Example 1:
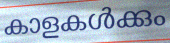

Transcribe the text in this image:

കാളകൾക്കും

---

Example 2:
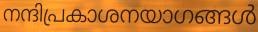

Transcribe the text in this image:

നന്ദിപ്രകാശനയാഗങ്ങൾ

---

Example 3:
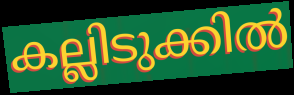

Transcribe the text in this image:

കല്ലിടുക്കിൽ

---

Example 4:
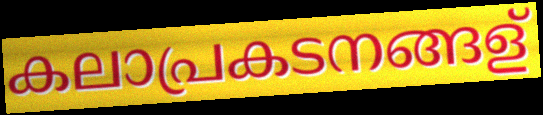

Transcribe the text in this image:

കലാപ്രകടനങ്ങള്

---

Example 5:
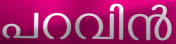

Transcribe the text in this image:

പറവിൻ